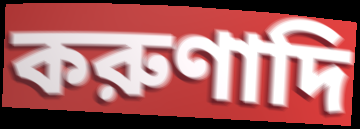
করুণাদি